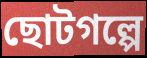
ছোটগল্পে